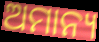
ଅମାନ୍ୟ